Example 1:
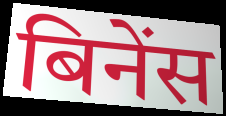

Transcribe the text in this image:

बिनेंस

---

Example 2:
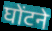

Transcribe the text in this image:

घोंटने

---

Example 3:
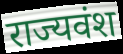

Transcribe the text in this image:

राज्यवंश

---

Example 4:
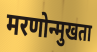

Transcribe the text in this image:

मरणोन्मुखता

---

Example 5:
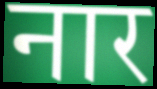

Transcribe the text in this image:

नार